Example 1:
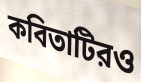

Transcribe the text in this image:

কবিতাটিরও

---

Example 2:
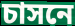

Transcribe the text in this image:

চাসনে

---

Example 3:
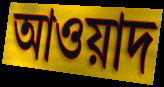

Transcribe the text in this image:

আওয়াদ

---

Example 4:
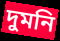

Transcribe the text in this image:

দুমনি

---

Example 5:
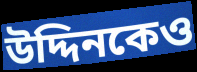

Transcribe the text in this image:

উদ্দিনকেও